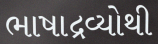
ભાષાદ્રવ્યોથી